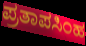
ಪ್ರತಾಪಸಿಂಹ